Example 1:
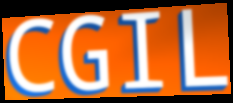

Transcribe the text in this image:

CGIL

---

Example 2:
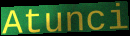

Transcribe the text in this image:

Atunci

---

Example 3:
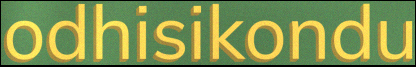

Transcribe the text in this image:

odhisikondu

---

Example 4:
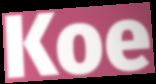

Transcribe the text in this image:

Koe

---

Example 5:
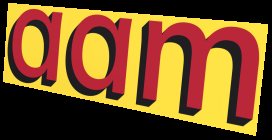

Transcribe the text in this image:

aam